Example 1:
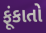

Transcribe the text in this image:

ફૂંકાતો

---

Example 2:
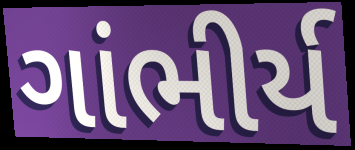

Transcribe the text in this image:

ગાંભીર્ય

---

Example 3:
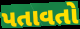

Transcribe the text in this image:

પતાવતો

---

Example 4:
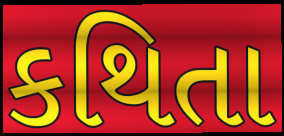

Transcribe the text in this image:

કથિતા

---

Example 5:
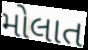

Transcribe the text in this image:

મોલાત